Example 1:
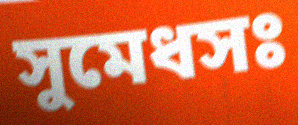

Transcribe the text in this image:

সুমেধসঃ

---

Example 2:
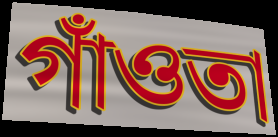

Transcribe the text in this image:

গাঁওতা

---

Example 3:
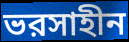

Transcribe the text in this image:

ভরসাহীন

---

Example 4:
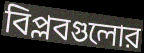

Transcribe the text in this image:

বিপ্লবগুলোর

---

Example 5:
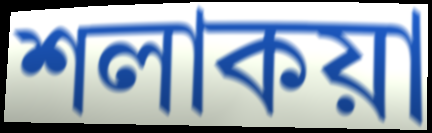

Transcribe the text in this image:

শলাকয়া